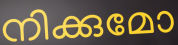
നിക്കുമോ